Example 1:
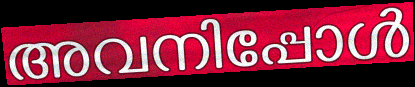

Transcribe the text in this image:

അവനിപ്പോൾ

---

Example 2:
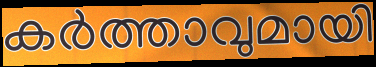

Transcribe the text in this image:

കർത്താവുമായി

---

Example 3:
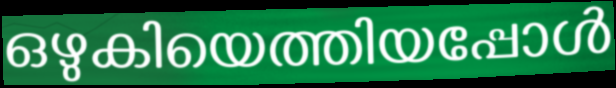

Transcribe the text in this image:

ഒഴുകിയെത്തിയപ്പോൾ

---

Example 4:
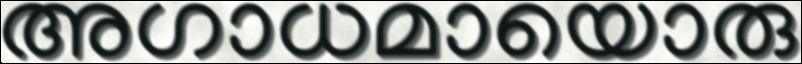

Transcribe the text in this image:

അഗാധമായൊരു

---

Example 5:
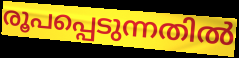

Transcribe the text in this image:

രൂപപ്പെടുന്നതിൽ